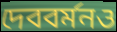
দেববর্মনও